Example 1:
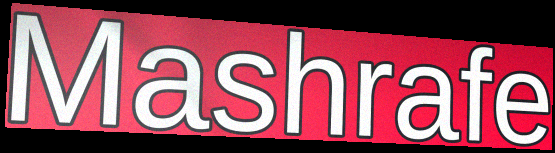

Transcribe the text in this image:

Mashrafe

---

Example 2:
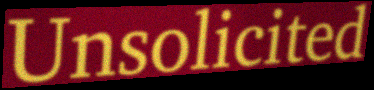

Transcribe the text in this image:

Unsolicited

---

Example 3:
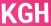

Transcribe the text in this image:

KGH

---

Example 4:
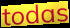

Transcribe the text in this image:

todas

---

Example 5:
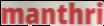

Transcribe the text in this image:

manthri